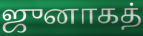
ஜுனாகத்